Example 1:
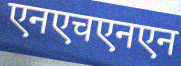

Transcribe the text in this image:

एनएचएनएन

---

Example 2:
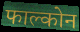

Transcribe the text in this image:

फाल्कोन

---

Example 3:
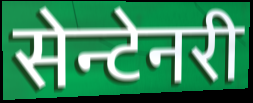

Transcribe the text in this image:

सेन्टेनरी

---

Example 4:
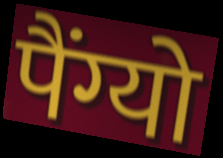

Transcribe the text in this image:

पैंग्यो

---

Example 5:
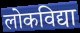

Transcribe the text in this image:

लोकविद्या